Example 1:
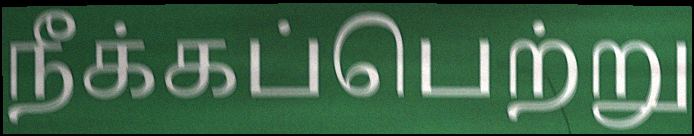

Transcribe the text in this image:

நீக்கப்பெற்று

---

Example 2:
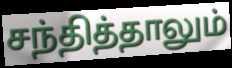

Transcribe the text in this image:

சந்தித்தாலும்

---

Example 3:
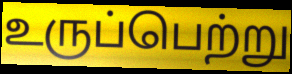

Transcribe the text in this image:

உருப்பெற்று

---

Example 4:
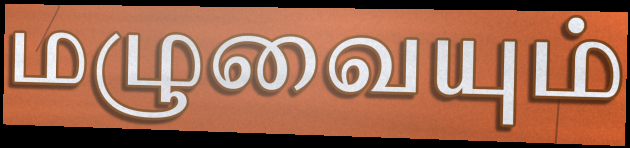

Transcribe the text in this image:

மழுவையும்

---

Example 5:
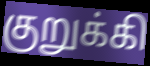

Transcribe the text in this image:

குறுக்கி